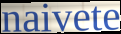
naivete